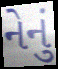
નેનું